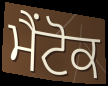
ਮੈਂਟੋਕ